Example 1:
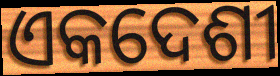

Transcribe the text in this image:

ଏକଦେଶୀ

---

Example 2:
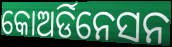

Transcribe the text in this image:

କୋଅର୍ଡିନେସନ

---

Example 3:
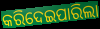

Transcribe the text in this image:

କରିଦେଇପାରିଲା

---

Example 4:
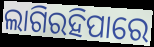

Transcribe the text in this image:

ଲାଗିରହିପାରେ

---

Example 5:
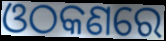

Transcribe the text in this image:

ଓଠକଣରେ